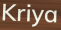
Kriya